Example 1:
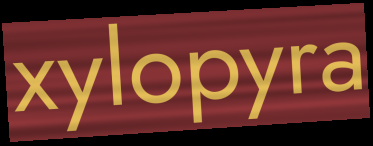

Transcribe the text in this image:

xylopyra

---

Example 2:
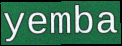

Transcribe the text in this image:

yemba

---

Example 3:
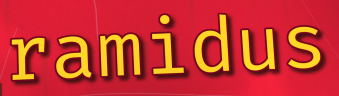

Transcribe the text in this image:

ramidus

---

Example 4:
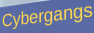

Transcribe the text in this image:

Cybergangs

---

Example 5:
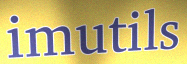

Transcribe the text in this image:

imutils